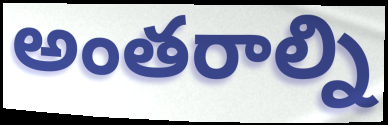
అంతరాల్ని